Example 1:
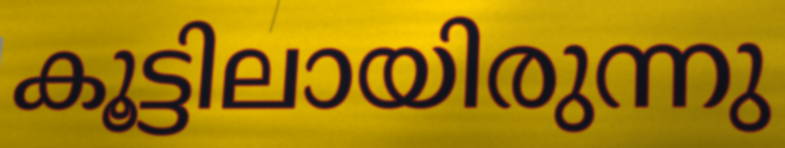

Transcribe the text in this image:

കൂട്ടിലായിരുന്നു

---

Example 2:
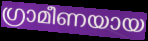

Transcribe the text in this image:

ഗ്രാമീണയായ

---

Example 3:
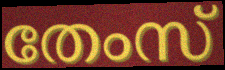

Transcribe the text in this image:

തേംസ്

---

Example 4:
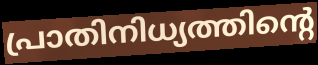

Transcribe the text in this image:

പ്രാതിനിധ്യത്തിന്റെ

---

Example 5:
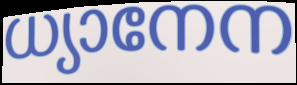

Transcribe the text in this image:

ധ്യാനേന